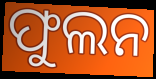
ଫୁଲନ